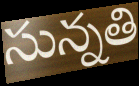
సున్నతి